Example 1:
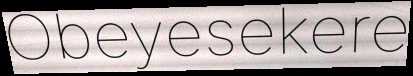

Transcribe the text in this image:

Obeyesekere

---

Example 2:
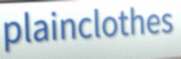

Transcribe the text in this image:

plainclothes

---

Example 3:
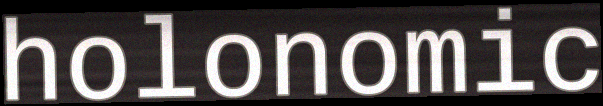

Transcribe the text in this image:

holonomic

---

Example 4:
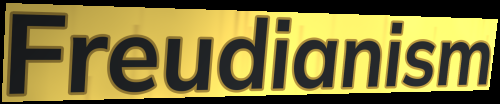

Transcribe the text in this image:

Freudianism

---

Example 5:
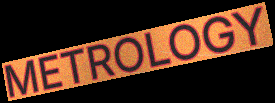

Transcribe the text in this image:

METROLOGY